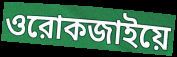
ওরোকজাইয়ে